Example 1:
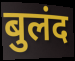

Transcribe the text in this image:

बुलंद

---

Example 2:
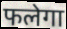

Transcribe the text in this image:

फलेगा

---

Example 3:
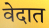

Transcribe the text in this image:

वेदात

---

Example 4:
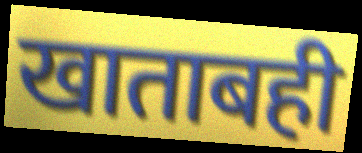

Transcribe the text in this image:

खाताबही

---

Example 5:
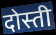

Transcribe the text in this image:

दोस्ती